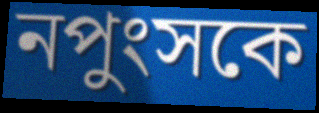
নপুংসকে